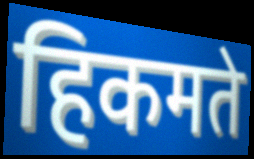
हिकमते